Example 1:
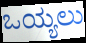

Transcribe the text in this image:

ಒಯ್ಯಲು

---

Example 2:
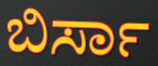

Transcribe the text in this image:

ಬಿರ್ಸಾ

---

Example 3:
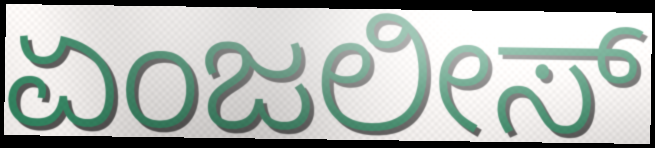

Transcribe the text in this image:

ಏಂಜಲೀಸ್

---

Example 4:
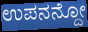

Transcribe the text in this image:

ಉಪನನ್ದೋ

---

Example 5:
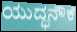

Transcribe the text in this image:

ಯುದ್ಧನೌಕೆ